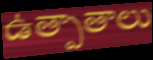
ఉత్పాతాలు